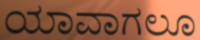
ಯಾವಾಗಲೂ